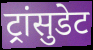
ट्रांसुडेट